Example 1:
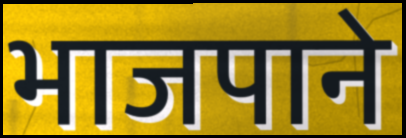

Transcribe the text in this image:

भाजपाने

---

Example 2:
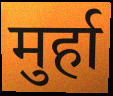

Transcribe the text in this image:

मुर्हा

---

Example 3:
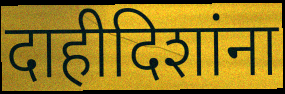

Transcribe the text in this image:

दाहीदिशांना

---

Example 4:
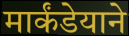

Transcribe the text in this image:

मार्कंडेयाने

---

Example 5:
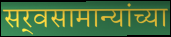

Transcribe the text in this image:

सर्वसामान्यांच्या